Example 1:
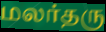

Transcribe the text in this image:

மலர்தரு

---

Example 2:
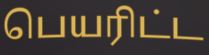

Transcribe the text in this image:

பெயரிட்ட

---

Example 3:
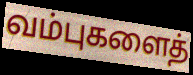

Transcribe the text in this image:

வம்புகளைத்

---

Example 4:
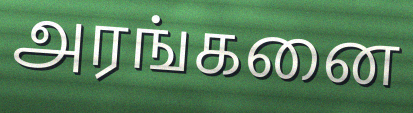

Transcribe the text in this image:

அரங்கனை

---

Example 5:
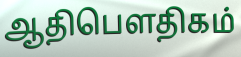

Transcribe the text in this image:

ஆதிபௌதிகம்